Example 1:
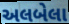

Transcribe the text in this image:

અલબેલા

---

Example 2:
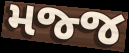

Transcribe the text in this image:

મજ્જ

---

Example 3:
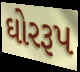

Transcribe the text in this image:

ઘોરરૂપ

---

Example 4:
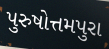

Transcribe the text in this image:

પુરુષોત્તમપુરા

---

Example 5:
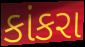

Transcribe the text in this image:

કાંકરા